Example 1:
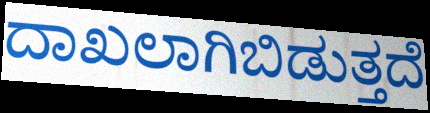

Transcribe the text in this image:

ದಾಖಲಾಗಿಬಿಡುತ್ತದೆ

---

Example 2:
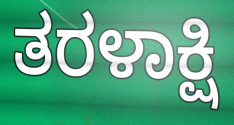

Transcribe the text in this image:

ತರಳಾಕ್ಷಿ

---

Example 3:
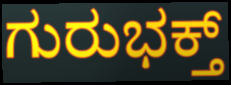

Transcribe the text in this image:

ಗುರುಭಕ್ತ್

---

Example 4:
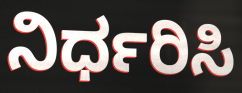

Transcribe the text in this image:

ನಿರ್ಧರಿಸಿ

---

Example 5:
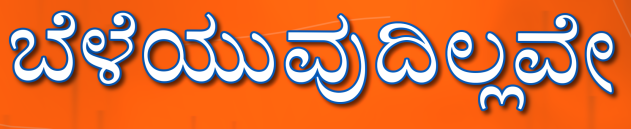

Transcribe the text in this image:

ಬೆಳೆಯುವುದಿಲ್ಲವೇ